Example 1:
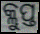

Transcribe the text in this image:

କ୍ଲୁପ୍ତ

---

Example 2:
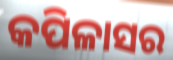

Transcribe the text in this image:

କପିଳାସର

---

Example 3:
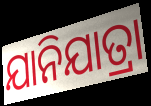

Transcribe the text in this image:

ଯାନିଯାତ୍ରା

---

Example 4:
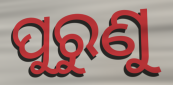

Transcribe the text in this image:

ପୁରୁଣୁ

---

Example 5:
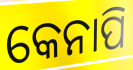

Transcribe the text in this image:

କେନାପି